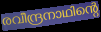
രവീന്ദ്രനാഥിന്റെ